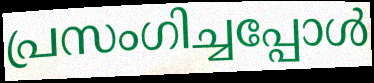
പ്രസംഗിച്ചപ്പോൾ